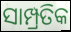
ସାମ୍ପ୍ରତିକ